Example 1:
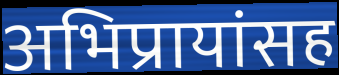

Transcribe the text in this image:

अभिप्रायांसह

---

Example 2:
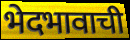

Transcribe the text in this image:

भेदभावाची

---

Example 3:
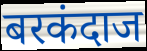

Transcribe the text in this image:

बरकंदाज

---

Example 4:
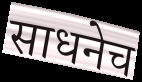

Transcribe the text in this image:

साधनेच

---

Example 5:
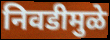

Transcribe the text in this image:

निवडीमुळे